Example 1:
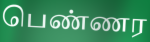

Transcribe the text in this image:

பெண்ணர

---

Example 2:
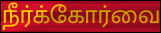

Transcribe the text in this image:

நீர்க்கோர்வை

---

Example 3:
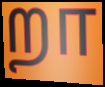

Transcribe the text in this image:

றா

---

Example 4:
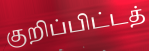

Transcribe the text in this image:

குறிப்பிட்டத்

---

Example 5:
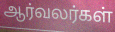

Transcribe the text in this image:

ஆர்வலர்கள்